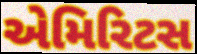
એમિરિટસ